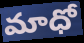
మాధో